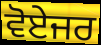
ਵੋਏਜਰ